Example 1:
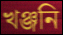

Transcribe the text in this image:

খঞ্জনি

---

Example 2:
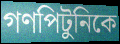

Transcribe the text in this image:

গণপিটুনিকে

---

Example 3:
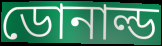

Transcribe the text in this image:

ডোনাল্ড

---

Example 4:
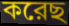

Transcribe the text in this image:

করেছ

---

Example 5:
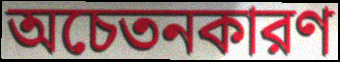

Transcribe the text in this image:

অচেতনকারণ